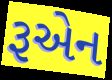
રૂએન